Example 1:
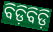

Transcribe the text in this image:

ବିଡ଼ିବିଡ଼ି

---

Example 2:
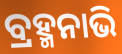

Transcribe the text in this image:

ବ୍ରହ୍ମନାଭି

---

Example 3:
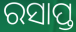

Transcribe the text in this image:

ରସାପ୍ତ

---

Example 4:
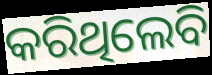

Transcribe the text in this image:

କରିଥିଲେବି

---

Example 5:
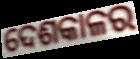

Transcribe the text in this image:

ଦେଶକାଳର